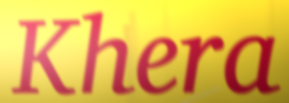
Khera